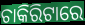
ଚାକିରିଟାରେ